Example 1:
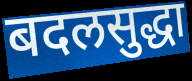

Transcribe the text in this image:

बदलसुद्धा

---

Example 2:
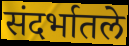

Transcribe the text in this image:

संदर्भातले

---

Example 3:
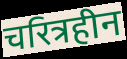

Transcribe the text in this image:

चरित्रहीन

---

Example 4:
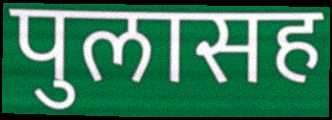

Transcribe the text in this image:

पुलासह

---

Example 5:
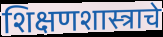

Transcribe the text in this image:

शिक्षणशास्त्राचे